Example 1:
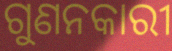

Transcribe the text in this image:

ଗୁଣନକାରୀ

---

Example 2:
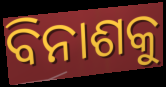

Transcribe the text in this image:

ବିନାଶକୁ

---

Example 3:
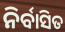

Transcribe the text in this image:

ନିର୍ବାସିତ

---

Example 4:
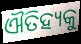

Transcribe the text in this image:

ଐତିହ୍ୟକୁ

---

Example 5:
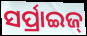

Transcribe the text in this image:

ସର୍ପ୍ରାଇଜ୍